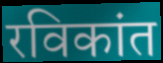
रविकांत